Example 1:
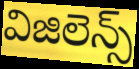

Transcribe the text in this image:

విజిలెన్స్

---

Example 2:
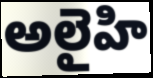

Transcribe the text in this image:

అలైహి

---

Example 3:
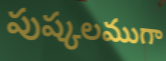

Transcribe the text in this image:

పుష్కలముగా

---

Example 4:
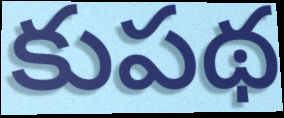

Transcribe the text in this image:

కుపథ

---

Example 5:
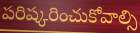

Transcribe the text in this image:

పరిష్కరించుకోవాల్సి